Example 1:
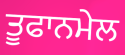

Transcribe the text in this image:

ਤੂਫਾਨਮੇਲ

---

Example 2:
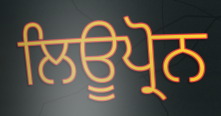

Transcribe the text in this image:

ਲਿਊਪ੍ਰੋਨ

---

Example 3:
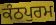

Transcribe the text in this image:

ਕੰਠਪੁਰਮ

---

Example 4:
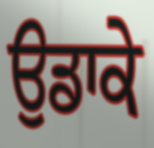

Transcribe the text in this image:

ਉਡਾਕੇ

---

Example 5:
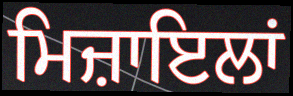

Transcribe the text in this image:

ਮਿਜ਼ਾਇਲਾਂ